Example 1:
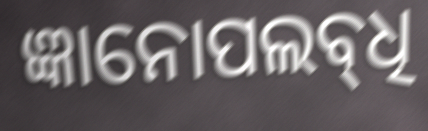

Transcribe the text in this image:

ଜ୍ଞାନୋପଲବ୍‌ଧି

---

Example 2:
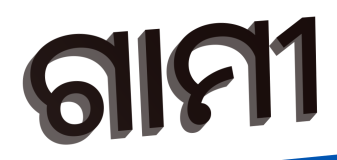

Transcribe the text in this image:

ଗାମୀ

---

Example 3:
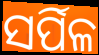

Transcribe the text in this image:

ସର୍ପିଳ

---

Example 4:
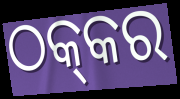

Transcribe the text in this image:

ଠକ୍‍କର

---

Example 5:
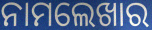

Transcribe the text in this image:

ନାମଲେଖାର